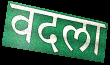
वदला